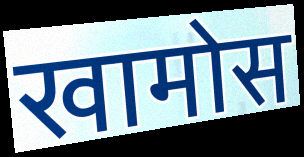
खामोस